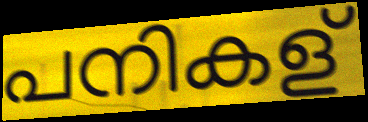
പനികള്